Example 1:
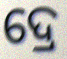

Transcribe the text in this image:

ଦ୍ରେ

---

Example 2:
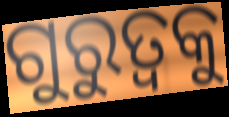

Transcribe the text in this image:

ଗୁରୁତ୍ବକୁ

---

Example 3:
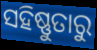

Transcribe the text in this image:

ସହିଷ୍ଣୁତାରୁ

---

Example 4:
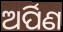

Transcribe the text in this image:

ଅର୍ପିଣ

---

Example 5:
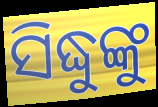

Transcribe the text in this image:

ସିଦ୍ଧୁଙ୍କୁ